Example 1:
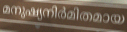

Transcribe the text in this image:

മനുഷ്യനിർമിതമായ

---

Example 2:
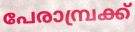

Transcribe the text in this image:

പേരാമ്പ്രക്ക്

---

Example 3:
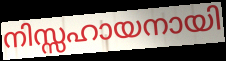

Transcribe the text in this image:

നിസ്സഹായനായി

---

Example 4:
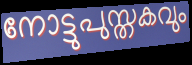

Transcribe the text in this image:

നോട്ടുപുസ്തകവും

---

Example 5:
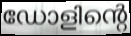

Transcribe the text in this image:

ഡോളിന്റെ